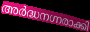
അർദ്ധനഗ്നരാക്കി